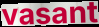
vasant